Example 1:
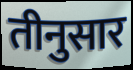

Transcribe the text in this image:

तीनुसार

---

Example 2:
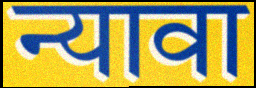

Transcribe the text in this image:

न्यावा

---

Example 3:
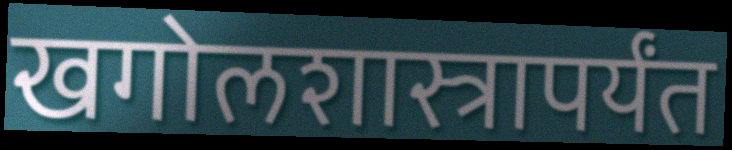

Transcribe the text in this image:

खगोलशास्त्रापर्यंत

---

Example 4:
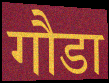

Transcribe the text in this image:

गौडा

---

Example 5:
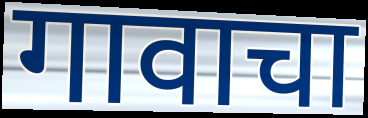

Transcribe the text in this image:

गावाचा